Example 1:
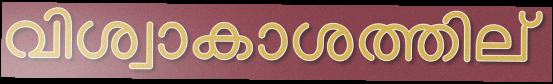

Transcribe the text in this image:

വിശ്വാകാശത്തില്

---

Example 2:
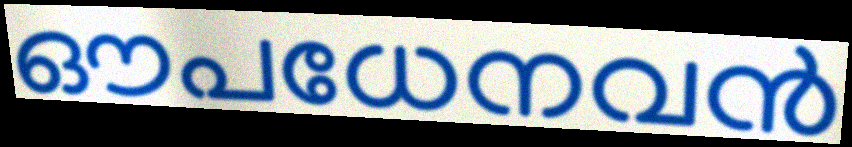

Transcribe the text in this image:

ഔപധേനവൻ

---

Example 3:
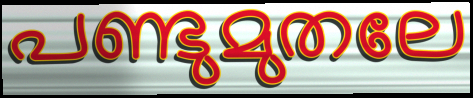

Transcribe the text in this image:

പണ്ടുമുതലേ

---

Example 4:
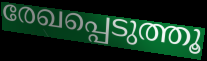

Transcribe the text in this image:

രേഖപ്പെടുത്തൂ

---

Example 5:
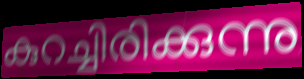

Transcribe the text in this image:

കുറച്ചിരിക്കുന്നു